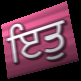
ਇਤੁ